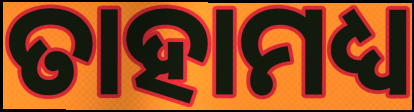
ତାହାମଧ୍ୟ